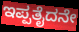
ಇಪ್ಪತೈದನೇ